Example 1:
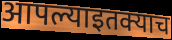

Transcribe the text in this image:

आपल्याइतक्याच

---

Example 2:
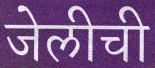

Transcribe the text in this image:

जेलीची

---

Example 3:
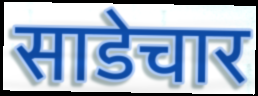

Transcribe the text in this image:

साडेचार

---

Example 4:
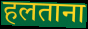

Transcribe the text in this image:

हलताना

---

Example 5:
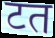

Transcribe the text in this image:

टत